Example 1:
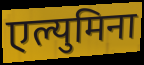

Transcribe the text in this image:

एल्युमिना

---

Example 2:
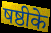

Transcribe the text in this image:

षष्ठीके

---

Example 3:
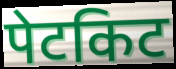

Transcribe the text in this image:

पेटकिट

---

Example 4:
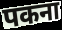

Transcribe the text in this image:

पकना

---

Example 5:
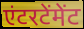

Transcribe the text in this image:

एंटरटेंमेंट